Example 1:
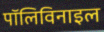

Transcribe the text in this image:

पॉलिविनाइल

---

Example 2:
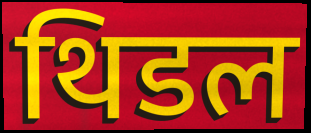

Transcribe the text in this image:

थिडल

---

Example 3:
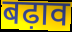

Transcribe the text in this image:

बढ़ाव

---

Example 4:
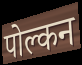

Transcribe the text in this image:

पोल्कन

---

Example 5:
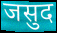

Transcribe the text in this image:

जसुद